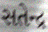
સતેન્દ્ર